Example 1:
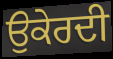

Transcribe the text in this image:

ਉਕੇਰਦੀ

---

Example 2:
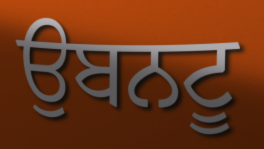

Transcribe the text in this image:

ਉਬਨਟੂ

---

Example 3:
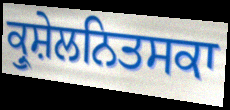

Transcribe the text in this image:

ਕ੍ਰੁਸ਼ੇਲਨਿਤਸਕਾ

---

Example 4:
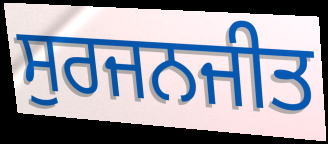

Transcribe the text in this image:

ਸੁਰਜਨਜੀਤ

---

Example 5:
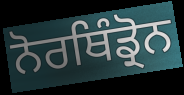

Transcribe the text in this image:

ਨੋਰਥਿੰਡ੍ਰੋਨ